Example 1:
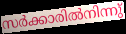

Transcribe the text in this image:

സർക്കാരിൽനിന്നു്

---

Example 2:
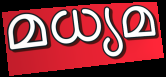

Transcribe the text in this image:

മധ്യമ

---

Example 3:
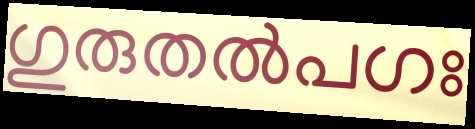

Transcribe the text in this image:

ഗുരുതൽപഗഃ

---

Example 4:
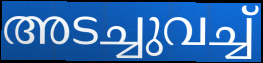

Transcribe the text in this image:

അടച്ചുവച്ച്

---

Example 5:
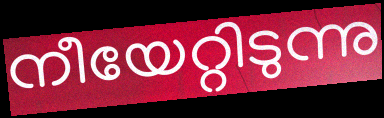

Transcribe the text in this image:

നീയേറ്റിടുന്നു